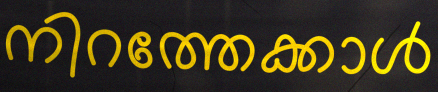
നിറത്തേക്കാൾ